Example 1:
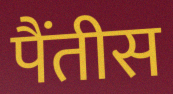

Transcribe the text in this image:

पैंतीस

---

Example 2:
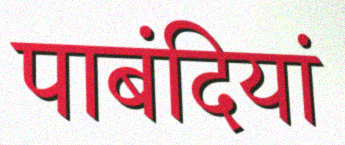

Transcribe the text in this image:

पाबंदियां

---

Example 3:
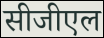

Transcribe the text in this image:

सीजीएल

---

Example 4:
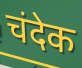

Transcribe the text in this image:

चंदेक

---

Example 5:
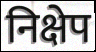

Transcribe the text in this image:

निक्षेप